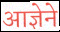
आज्ञेने